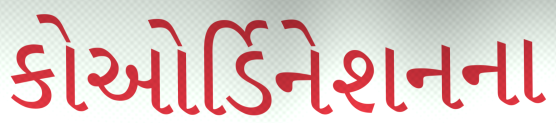
કોઓર્ડિનેશનના